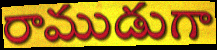
రాముడుగా